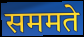
सममते